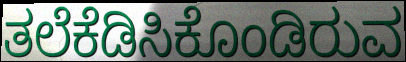
ತಲೆಕೆಡಿಸಿಕೊಂಡಿರುವ